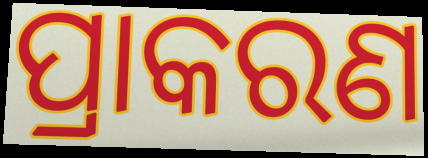
ପ୍ରାକରଣ